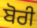
ਬੋਰੀ